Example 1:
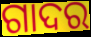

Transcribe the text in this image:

ଗାଦର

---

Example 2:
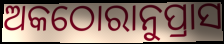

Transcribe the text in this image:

ଅକଠୋରାନୁପ୍ରାସ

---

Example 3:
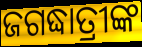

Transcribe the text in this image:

ଜଗଦ୍ଧାତ୍ରୀଙ୍କ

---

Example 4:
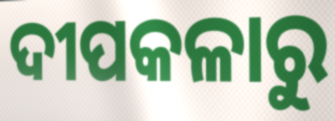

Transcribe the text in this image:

ଦୀପକଳାରୁ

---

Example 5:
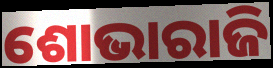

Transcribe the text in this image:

ଶୋଭାରାଜି